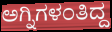
ಅಗ್ನಿಗಳಂತಿದ್ದ